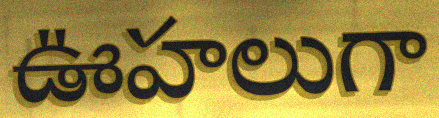
ఊహలుగా